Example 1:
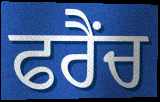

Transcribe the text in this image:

ਫਰੈਂਚ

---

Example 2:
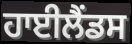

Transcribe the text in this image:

ਹਾਈਲੈਂਡਸ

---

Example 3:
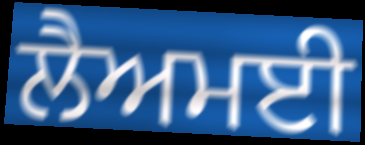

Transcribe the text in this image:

ਲੈਅਮਈ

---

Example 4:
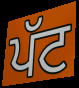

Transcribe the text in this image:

ਪੱਟ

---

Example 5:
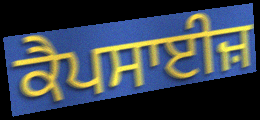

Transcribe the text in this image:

ਕੈਪਸਾਈਜ਼